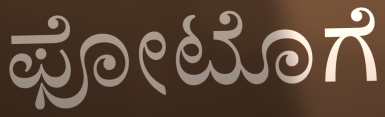
ಫೋಟೊಗೆ